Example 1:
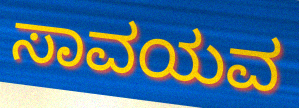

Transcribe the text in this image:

ಸಾವಯವ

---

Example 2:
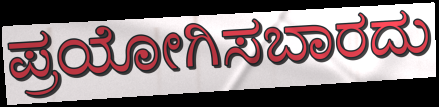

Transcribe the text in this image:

ಪ್ರಯೋಗಿಸಬಾರದು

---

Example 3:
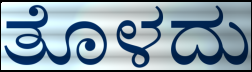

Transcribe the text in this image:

ತೊಳದು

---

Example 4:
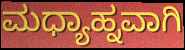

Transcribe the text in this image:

ಮಧ್ಯಾಹ್ನವಾಗಿ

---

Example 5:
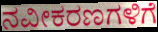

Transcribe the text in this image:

ನವೀಕರಣಗಳಿಗೆ